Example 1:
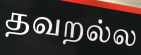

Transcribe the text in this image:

தவறல்ல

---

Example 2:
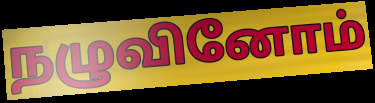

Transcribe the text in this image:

நழுவினோம்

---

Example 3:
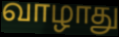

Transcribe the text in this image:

வாழாது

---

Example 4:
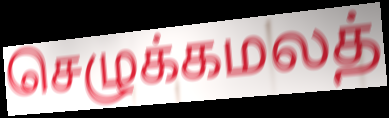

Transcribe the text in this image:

செழுக்கமலத்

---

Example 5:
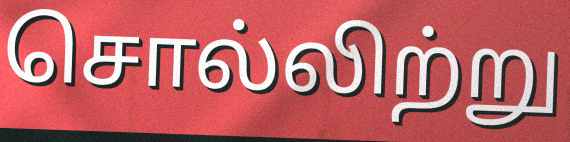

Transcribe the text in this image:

சொல்லிற்று